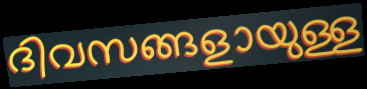
ദിവസങ്ങളായുള്ള